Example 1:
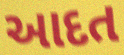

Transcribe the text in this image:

આદત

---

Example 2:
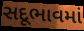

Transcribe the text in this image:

સદૂભાવમાં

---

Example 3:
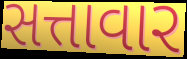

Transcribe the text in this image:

સત્તાવાર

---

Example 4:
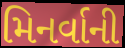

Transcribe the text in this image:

મિનર્વાની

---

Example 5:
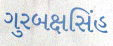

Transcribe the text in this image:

ગુરબક્ષસિંહ